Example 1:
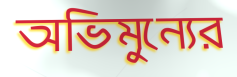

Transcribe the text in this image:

অভিমুন্যের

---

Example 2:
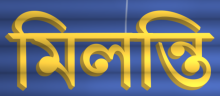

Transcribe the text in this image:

মিলন্তি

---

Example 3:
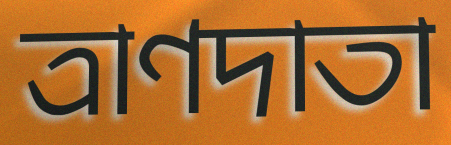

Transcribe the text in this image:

ত্রাণদাতা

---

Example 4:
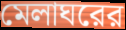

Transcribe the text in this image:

মেলাঘরের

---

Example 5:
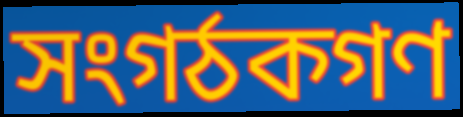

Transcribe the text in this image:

সংগঠকগণ